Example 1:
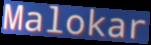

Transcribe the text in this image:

Malokar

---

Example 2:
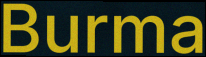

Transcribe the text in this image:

Burma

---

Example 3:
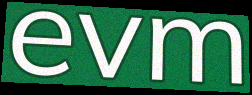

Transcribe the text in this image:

evm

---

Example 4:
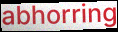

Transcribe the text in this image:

abhorring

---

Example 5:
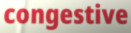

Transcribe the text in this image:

congestive